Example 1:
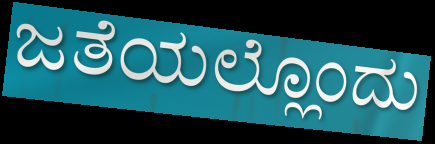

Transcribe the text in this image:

ಜತೆಯಲ್ಲೊಂದು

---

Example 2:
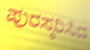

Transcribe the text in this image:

ಪುರಸ್ಕರಿಸಿದ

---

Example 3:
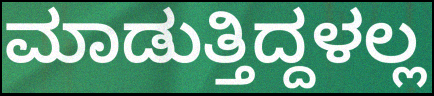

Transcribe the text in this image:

ಮಾಡುತ್ತಿದ್ದಳಲ್ಲ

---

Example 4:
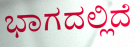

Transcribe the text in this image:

ಭಾಗದಲ್ಲಿದೆ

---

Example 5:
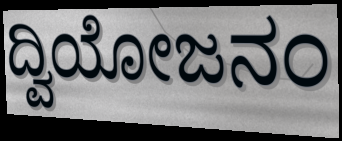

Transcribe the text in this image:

ದ್ವಿಯೋಜನಂ